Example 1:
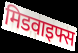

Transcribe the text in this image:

मिडवाइफ्स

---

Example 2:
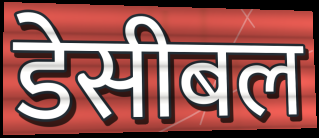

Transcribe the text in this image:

डेसीबल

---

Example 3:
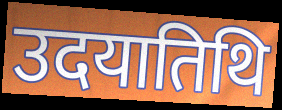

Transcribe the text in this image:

उदयातिथि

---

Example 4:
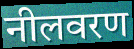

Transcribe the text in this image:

नीलवरण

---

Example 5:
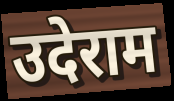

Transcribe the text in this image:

उदेराम